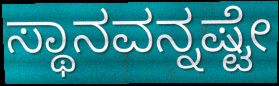
ಸ್ಥಾನವನ್ನಷ್ಟೇ